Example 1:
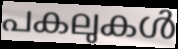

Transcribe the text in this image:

പകലുകൾ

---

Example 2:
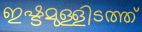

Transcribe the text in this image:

ഇഷ്ടമുള്ളിടത്ത്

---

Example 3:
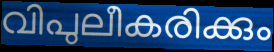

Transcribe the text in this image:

വിപുലീകരിക്കും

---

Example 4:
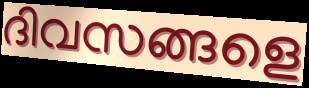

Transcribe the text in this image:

ദിവസങ്ങളെ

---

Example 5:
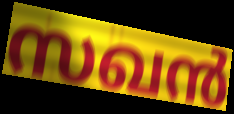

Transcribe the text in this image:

സഖൻ